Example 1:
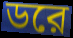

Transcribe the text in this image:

ডরে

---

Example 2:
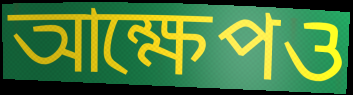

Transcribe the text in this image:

আক্ষেপও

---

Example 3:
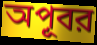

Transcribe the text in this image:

অপূবর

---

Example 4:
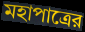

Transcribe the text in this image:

মহাপাত্রের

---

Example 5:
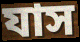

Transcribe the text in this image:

যাস